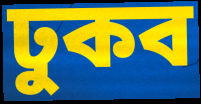
ঢুকব